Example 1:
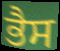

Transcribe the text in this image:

ਭੈਸ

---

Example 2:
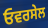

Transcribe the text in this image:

ਓਵਰਸੇਲ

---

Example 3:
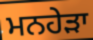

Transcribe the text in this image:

ਮਨਹੇੜਾ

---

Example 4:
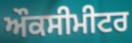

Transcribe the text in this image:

ਔਕਸੀਮੀਟਰ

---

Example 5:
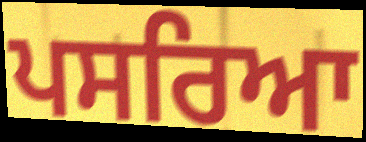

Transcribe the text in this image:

ਪਸਰਿਆ